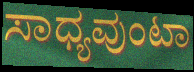
ಸಾಧ್ಯವುಂಟಾ